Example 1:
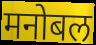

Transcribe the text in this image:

मनोबल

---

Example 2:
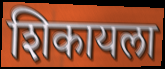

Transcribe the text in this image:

शिकायला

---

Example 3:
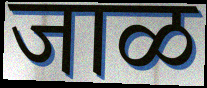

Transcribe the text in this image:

जाळ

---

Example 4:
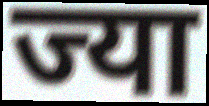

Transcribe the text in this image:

ज्या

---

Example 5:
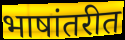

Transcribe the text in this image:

भाषांतरीत